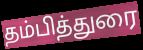
தம்பித்துரை